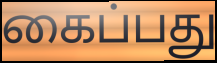
கைப்பது